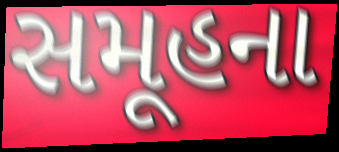
સમૂહના